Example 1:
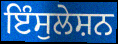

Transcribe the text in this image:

ਇੰਸੁਲੇਸ਼ਨ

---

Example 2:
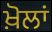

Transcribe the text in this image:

ਖ਼ੋਲਾਂ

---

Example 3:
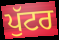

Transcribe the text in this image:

ਪੁੱਟਰ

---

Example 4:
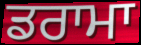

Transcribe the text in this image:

ਡਰਾਮਾ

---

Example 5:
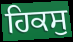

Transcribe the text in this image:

ਹਿਕਸੁ